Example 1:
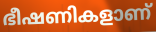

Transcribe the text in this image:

ഭീഷണികളാണ്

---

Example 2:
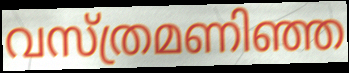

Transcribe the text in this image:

വസ്ത്രമണിഞ്ഞ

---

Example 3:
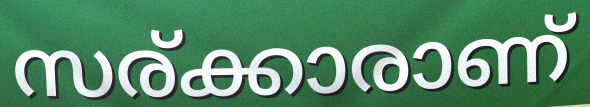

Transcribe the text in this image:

സര്ക്കാരാണ്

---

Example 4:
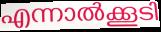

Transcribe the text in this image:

എന്നാൽക്കൂടി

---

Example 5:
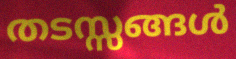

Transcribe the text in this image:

തടസ്സങ്ങൾ